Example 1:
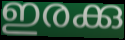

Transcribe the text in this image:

ഇരക്കു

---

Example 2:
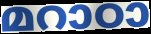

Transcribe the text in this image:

മറാഠാ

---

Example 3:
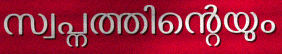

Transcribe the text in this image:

സ്വപ്നത്തിന്റെയും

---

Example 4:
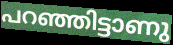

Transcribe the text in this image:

പറഞ്ഞിട്ടാണു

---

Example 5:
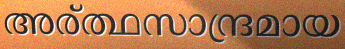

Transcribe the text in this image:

അര്ത്ഥസാന്ദ്രമായ